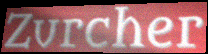
Zurcher